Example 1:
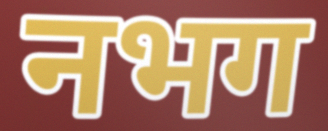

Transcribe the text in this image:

नभग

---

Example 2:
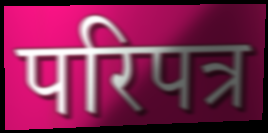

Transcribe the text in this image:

परिपत्र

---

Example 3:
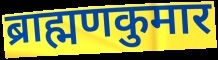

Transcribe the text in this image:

ब्राह्मणकुमार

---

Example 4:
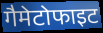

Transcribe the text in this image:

गैमेटोफाइट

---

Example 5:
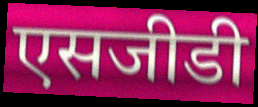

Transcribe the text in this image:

एसजीडी